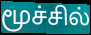
மூச்சில்